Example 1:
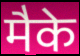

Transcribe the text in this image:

मैके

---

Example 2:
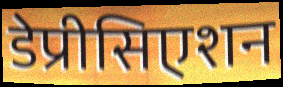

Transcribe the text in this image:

डेप्रीसिएशन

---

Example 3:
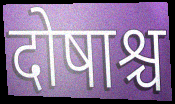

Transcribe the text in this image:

दोषाश्च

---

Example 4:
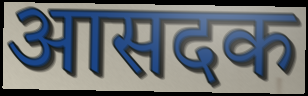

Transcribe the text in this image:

आसदक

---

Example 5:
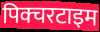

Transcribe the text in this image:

पिक्चरटाइम